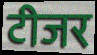
टीजर